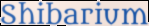
Shibarium